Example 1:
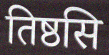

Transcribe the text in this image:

तिष्ठसि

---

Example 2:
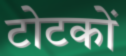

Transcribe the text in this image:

टोटकों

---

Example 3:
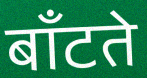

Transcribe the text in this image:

बाँटते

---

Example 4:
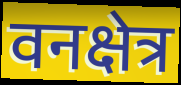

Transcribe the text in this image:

वनक्षेत्र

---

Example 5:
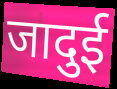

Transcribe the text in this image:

जादुई